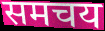
समचय